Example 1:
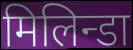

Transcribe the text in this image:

मिलिन्डा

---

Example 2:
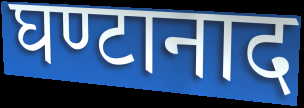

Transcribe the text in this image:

घण्टानाद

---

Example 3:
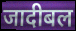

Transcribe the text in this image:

जादीबल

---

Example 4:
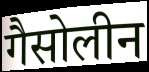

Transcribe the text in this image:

गैसोलीन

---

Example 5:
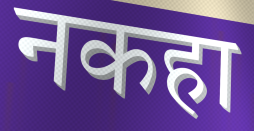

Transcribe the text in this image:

नकहा